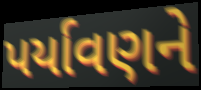
પર્યાવણને